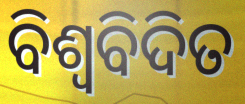
ବିଶ୍ବବିଦିତ